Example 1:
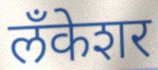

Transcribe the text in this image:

लँकेशर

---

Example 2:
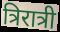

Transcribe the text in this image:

त्रिरात्री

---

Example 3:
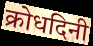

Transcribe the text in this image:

क्रोधदिनी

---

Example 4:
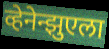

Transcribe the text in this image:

व्हेनेन्झुएला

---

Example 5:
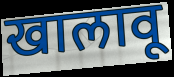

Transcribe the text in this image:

खालावू